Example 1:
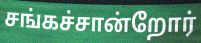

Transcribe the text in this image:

சங்கச்சான்றோர்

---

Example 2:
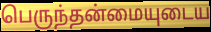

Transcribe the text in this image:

பெருந்தன்மையுடைய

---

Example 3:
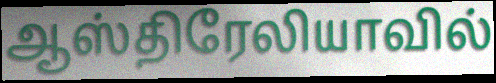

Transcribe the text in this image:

ஆஸ்திரேலியாவில்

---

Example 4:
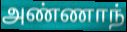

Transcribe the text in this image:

அண்ணாந்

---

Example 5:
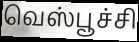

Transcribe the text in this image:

வெஸ்பூச்சி